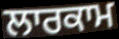
ਲਾਰਕਾਮ